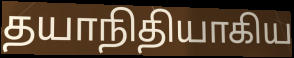
தயாநிதியாகிய